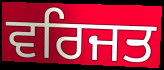
ਵਰਿਜਤ